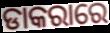
ଡାକରାରେ